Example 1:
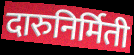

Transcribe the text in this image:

दारुनिर्मिती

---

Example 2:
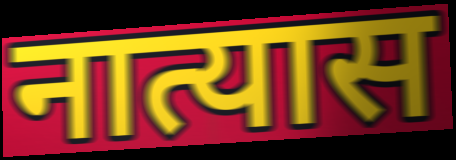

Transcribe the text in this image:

नात्यास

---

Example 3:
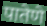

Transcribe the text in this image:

पातेणे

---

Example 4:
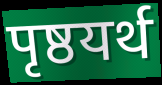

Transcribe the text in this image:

पृष्ठयर्थ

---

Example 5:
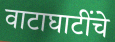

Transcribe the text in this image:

वाटाघाटींचे